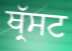
ਥ੍ਰੱਸਟ